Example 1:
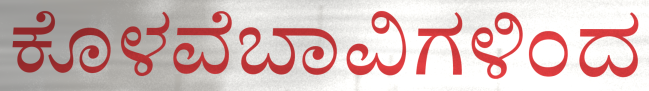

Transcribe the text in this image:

ಕೊಳವೆಬಾವಿಗಳಿಂದ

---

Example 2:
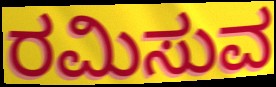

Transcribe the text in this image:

ರಮಿಸುವ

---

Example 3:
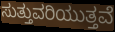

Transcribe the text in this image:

ಸುತ್ತುವರಿಯುತ್ತವೆ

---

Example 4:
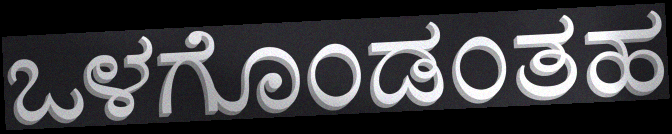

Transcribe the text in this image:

ಒಳಗೊಂಡಂತಹ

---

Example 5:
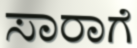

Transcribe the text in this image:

ಸಾರಾಗೆ